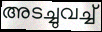
അടച്ചുവച്ച്